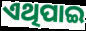
ଏଥିପାଇ